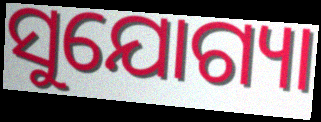
ସୁଯୋଗ୍ୟା